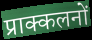
प्राक्कलनों